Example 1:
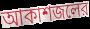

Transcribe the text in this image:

আকাশজলের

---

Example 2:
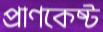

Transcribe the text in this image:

প্রাণকেষ্ট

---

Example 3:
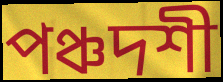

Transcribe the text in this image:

পঞ্চদশী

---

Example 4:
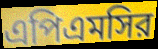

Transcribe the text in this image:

এপিএমসির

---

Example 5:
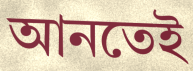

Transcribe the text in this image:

আনতেই